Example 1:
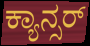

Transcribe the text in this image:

ಕ್ಯಾನ್ಸರ್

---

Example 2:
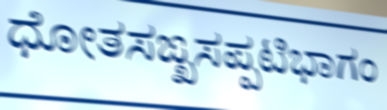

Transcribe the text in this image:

ಧೋತಸಙ್ಖಸಪ್ಪಟಿಭಾಗಂ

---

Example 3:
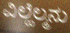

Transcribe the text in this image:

ವಿಲ್ಹೆಲ್ಮನು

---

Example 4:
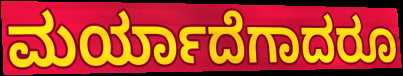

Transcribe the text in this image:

ಮರ್ಯಾದೆಗಾದರೂ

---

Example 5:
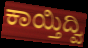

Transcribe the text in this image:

ಕಾಯ್ತಿದ್ವಿ